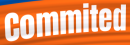
Commited